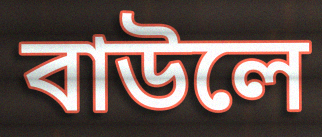
বাউলে